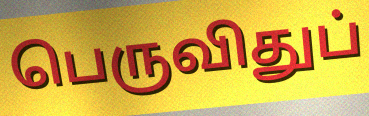
பெருவிதுப்